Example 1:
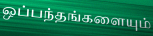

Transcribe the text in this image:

ஒப்பந்தங்களையும்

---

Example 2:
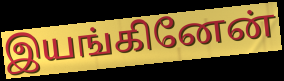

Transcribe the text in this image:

இயங்கினேன்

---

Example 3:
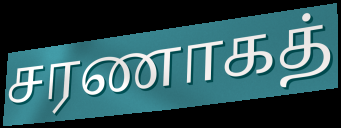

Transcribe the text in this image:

சரணாகத்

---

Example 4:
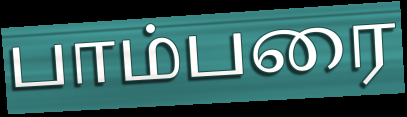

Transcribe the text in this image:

பாம்பரை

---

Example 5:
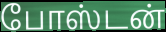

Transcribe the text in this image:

போஸ்டன்